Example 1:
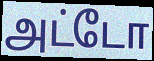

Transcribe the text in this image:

அட்டோ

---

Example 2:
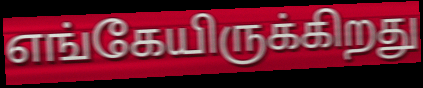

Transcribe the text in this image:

எங்கேயிருக்கிறது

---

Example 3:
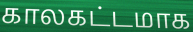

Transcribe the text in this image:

காலகட்டமாக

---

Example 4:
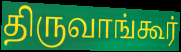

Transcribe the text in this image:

திருவாங்கூர்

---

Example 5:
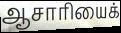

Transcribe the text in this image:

ஆசாரியைக்